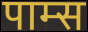
पाम्स